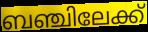
ബഞ്ചിലേക്ക്